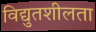
विद्युतशीलता